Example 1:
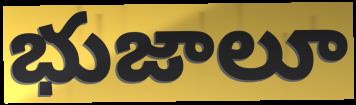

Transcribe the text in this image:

భుజాలూ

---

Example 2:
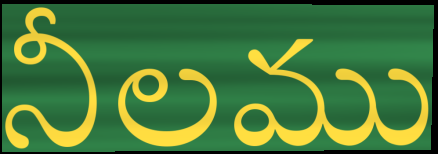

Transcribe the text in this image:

నీలము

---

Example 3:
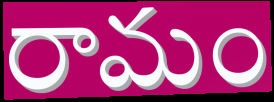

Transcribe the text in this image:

రామం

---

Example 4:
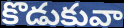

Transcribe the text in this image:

కొడుకువా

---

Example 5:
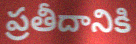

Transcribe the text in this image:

ప్రతీదానికి